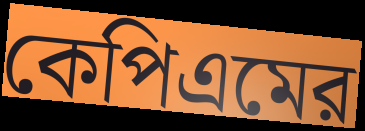
কেপিএমের